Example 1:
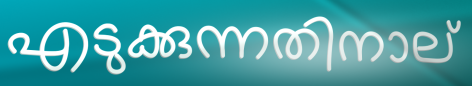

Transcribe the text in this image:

എടുക്കുന്നതിനാല്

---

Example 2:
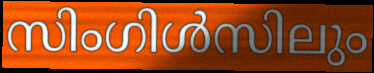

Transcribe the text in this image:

സിംഗിൾസിലും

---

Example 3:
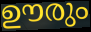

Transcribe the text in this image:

ഊരും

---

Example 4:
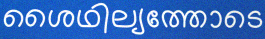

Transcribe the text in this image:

ശൈഥില്യത്തോടെ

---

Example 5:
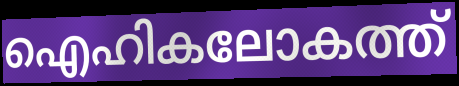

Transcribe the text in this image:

ഐഹികലോകത്ത്